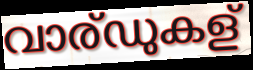
വാര്ഡുകള്